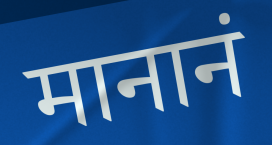
मानानं